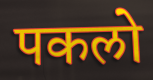
पकलो